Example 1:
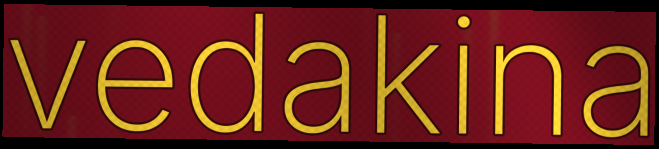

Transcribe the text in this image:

vedakina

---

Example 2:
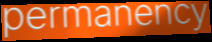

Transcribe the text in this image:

permanency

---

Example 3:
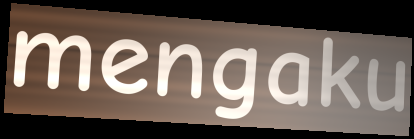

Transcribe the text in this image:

mengaku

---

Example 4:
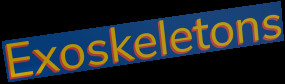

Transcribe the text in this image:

Exoskeletons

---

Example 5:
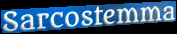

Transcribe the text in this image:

Sarcostemma